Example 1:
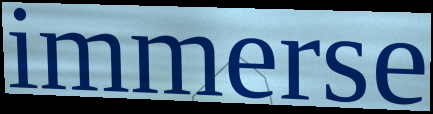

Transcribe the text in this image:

immerse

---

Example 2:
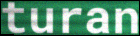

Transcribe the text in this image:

turan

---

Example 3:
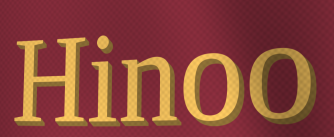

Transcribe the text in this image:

Hinoo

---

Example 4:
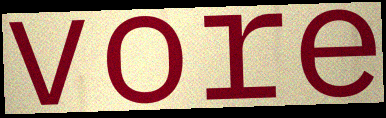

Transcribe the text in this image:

vore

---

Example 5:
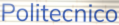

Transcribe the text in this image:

Politecnico